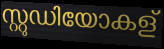
സ്റ്റുഡിയോകള്